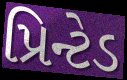
પ્રિન્ટેડ